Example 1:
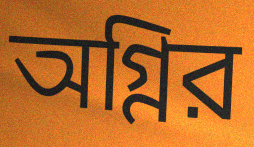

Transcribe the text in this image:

অগ্নির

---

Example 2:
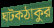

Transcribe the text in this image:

ঘটকঠাকুর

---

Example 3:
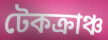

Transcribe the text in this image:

টেকক্রাঞ্চ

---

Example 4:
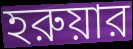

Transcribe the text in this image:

হরুয়ার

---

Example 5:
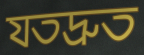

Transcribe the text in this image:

যতদ্রুত